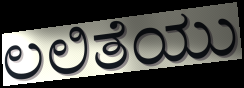
ಲಲಿತೆಯು